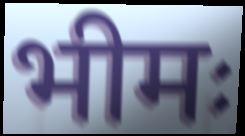
भीमः